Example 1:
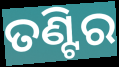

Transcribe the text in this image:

ତଣ୍ଟିର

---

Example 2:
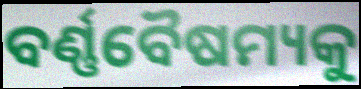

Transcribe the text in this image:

ବର୍ଣ୍ଣବୈଷମ୍ୟକୁ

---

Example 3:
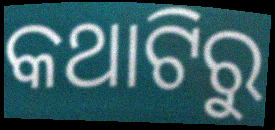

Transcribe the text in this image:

କଥାଟିରୁ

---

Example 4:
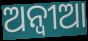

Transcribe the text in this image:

ଅନ୍ବୀଆ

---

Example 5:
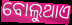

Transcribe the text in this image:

ବୋଲୁଥାଏ